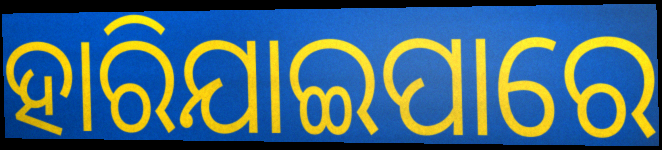
ହାରିଯାଇପାରେ